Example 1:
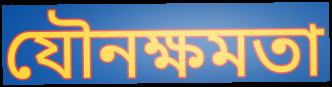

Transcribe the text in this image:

যৌনক্ষমতা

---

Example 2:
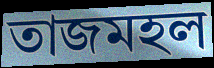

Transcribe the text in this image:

তাজমহল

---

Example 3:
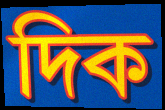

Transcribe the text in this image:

দিক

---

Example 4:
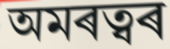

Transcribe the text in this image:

অমৰত্বৰ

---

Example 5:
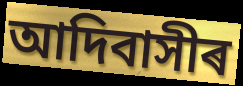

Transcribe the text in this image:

আদিবাসীৰ